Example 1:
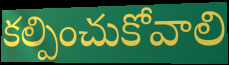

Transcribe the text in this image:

కల్పించుకోవాలి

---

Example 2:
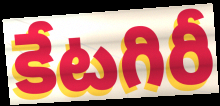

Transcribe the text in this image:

కేటగిరీ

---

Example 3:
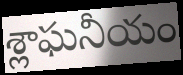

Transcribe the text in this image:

శ్లాఘనీయం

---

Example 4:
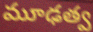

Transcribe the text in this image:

మూఢత్వ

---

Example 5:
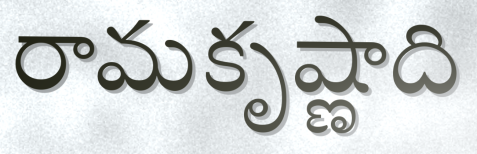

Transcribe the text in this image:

రామకృష్ణాది